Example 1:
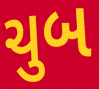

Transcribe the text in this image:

ચુબ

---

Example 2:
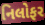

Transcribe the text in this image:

નિલોફર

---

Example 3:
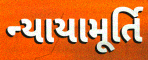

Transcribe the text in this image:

ન્યાયામૂર્તિ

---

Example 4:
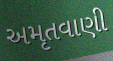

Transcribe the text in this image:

અમૃતવાણી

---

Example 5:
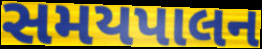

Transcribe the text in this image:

સમયપાલન